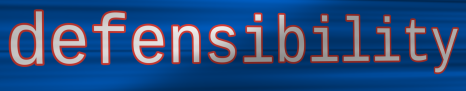
defensibility